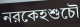
নরকেহশুচৌ